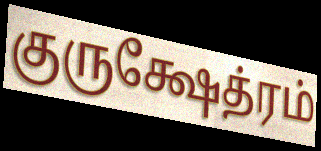
குருக்ஷேத்ரம்